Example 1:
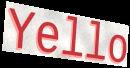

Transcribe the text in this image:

Yello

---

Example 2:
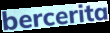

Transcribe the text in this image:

bercerita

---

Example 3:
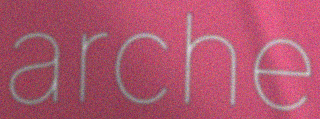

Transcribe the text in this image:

arche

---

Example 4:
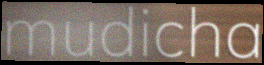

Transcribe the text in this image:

mudicha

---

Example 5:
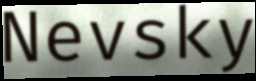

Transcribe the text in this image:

Nevsky